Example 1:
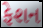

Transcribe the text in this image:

ફેશન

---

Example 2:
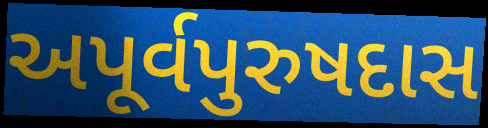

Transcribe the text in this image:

અપૂર્વપુરુષદાસ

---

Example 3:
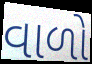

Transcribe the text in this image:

વાળો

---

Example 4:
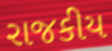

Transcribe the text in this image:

રાજકીય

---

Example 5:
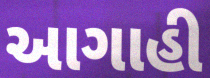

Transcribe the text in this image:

આગાહી